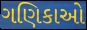
ગણિકાઓ